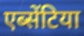
एब्सेंटिया